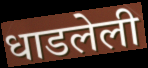
धाडलेली